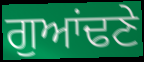
ਗੁਆਂਢਣੇ